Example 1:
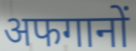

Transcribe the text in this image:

अफगानों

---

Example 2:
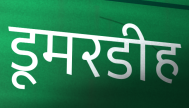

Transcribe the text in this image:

डूमरडीह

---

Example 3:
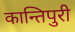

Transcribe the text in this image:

कान्तिपुरी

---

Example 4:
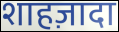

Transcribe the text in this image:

शाहज़ादा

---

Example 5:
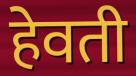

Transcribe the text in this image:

हेवती